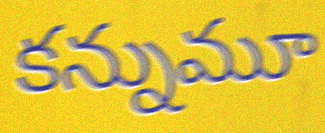
కన్నుమూ